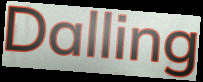
Dalling